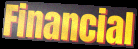
Financial